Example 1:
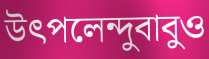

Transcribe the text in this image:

উৎপলেন্দুবাবুও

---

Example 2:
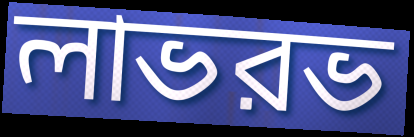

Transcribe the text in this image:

লাভরভ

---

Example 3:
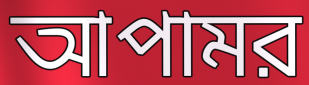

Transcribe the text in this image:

আপামর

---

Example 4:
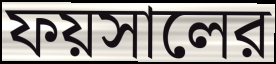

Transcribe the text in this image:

ফয়সালের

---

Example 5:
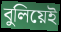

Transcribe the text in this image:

বুলিয়েই